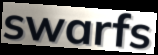
swarfs